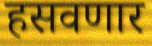
हसवणार